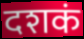
दशकं